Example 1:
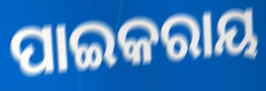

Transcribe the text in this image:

ପାଇକରାୟ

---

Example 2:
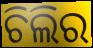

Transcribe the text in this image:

ଚିଲିର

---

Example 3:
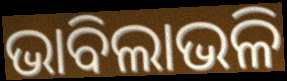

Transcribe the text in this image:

ଭାବିଲାଭଳି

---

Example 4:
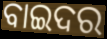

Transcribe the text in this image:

ବାଇଦର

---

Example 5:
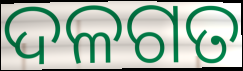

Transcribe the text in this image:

ଦଳଗତ